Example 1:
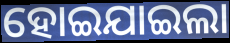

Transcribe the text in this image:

ହୋଇଯାଇଲା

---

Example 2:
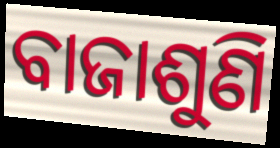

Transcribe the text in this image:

ବାଜାଶୁଣି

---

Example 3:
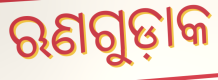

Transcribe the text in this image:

ଋଣଗୁଡ଼ାକ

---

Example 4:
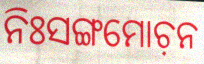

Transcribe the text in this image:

ନିଃସଙ୍ଗମୋଚ଼ନ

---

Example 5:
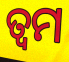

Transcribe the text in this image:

ତ୍ୱମ